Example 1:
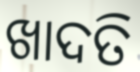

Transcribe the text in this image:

ଖାଦତି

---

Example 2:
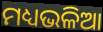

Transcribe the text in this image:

ମଧ୍ୟଭଳିଆ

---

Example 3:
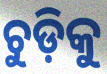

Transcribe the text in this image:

ଚୁଡ଼ିକୁ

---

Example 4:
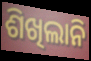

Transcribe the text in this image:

ଶିଖିଲାନି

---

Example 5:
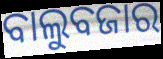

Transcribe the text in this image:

ବାଲୁବଜାର